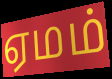
ஏமம்